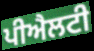
ਪੀਐਲਟੀ